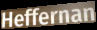
Heffernan